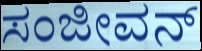
ಸಂಜೀವನ್